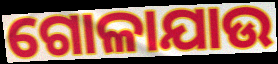
ଗୋଳାଯାଉ